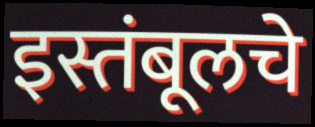
इस्तंबूलचे